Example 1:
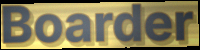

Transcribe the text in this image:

Boarder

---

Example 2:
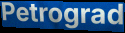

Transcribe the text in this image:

Petrograd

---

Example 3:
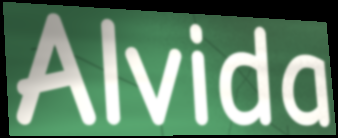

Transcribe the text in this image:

Alvida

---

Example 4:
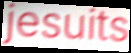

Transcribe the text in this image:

jesuits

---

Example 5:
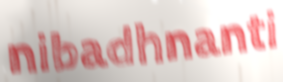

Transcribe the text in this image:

nibadhnanti